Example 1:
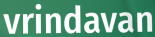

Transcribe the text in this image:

vrindavan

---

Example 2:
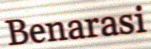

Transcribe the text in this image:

Benarasi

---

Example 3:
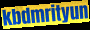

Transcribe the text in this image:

kbdmrityun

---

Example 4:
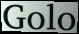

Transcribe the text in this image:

Golo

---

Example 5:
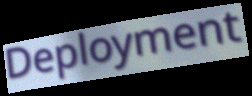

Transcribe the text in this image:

Deployment